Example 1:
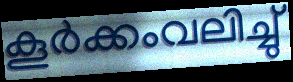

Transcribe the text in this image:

കൂർക്കംവലിച്ചു്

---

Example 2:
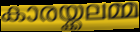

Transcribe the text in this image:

കാരയ്ക്കലമ്മ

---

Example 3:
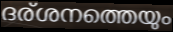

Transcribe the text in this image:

ദര്ശനത്തെയും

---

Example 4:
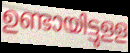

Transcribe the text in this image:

ഉണ്ടായിട്ടുളള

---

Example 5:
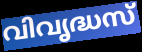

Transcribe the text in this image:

വിവൃദ്ധസ്